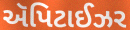
ઍપિટાઈઝર